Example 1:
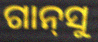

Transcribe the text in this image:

ଗାନ୍‍ସୁ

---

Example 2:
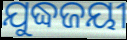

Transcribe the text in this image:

ଯୁଦ୍ଧଜୟୀ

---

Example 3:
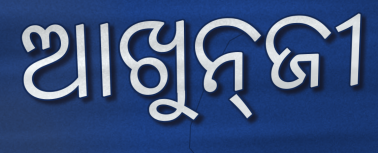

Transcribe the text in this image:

ଆଖୁନ୍‌ଜୀ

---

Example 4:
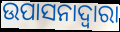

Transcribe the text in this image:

ଉପାସନାଦ୍ଵାରା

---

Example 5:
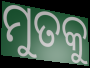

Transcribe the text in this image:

ମୁତକୁ